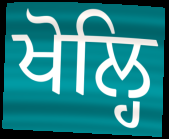
ਖੋਲ੍ਹਿ